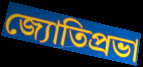
জ্যোতিপ্রভা